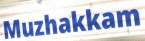
Muzhakkam